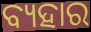
ବ୍ୟହାର